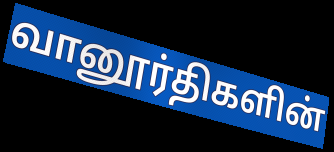
வானூர்திகளின்